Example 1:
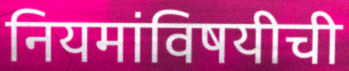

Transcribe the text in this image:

नियमांविषयीची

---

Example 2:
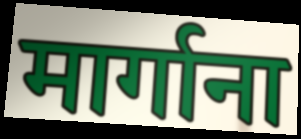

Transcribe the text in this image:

मार्गाना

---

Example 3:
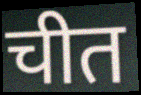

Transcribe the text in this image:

चीत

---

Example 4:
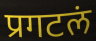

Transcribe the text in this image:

प्रगटलं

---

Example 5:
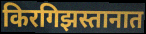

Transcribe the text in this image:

किरगिझस्तानात